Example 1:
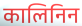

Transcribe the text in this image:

कालिनिन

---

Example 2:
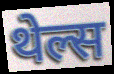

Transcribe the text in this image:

थेल्स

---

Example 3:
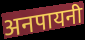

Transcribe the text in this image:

अनपायनी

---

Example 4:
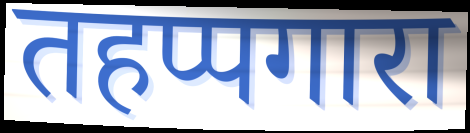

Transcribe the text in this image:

तहप्पगारा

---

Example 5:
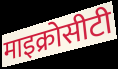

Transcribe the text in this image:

माइक्रोसीटी